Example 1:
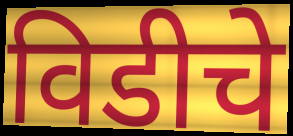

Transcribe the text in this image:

विडीचे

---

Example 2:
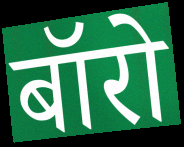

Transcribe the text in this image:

बॉरो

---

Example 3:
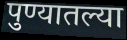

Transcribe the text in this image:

पुण्यातल्या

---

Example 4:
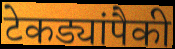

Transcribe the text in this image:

टेकड्यांपैकी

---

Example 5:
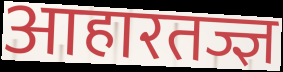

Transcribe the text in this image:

आहारतज्ज्ञ